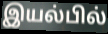
இயல்பில்